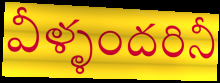
వీళ్ళందరినీ